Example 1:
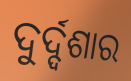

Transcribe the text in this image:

ଦୁର୍ଦ୍ଦଶାର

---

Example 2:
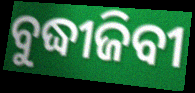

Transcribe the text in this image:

ବୁଦ୍ଧୀଜିବୀ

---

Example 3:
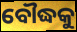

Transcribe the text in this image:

ବୌଦ୍ଧକୁ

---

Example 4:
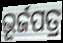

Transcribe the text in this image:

ଭୂର୍ଜପତ୍ର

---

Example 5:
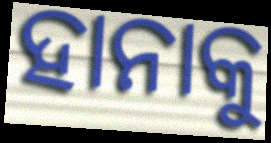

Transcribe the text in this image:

ହାନାକୁ